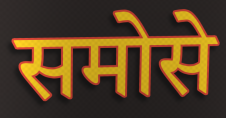
समोसे